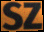
SZ